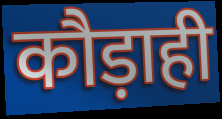
कौड़ाही